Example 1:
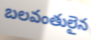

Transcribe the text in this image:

బలవంతులైన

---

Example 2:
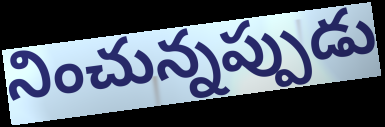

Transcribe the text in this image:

నించున్నప్పుడు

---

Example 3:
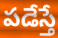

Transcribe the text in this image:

పడేస్తే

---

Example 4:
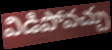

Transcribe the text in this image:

విడిపోవచ్చు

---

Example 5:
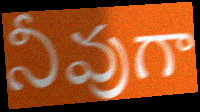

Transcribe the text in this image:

నీవుగా